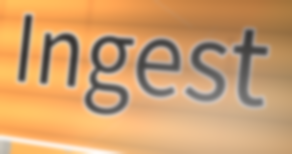
Ingest